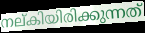
നല്കിയിരിക്കുന്നത്